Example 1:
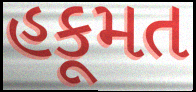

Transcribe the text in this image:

હકૂમત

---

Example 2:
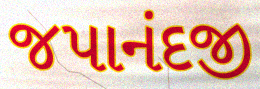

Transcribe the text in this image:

જપાનંદજી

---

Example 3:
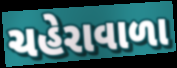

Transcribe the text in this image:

ચહેરાવાળા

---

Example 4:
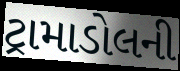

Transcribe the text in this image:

ટ્રામાડોલની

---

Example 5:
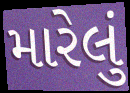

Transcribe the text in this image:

મારેલું